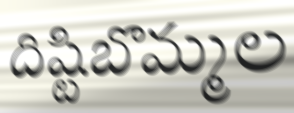
దిష్టిబొమ్మల